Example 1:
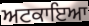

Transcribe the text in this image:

ਅਟਕਾਇਆ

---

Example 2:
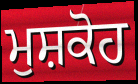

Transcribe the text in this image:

ਮੁਸ਼ਕੋਹ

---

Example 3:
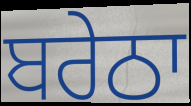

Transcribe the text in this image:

ਬਰੇਠਾ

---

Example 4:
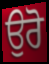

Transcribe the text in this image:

ਉਰੋ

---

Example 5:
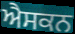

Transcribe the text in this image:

ਐਸਕਨ